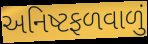
અનિષ્ટફળવાળું